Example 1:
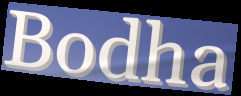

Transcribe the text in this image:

Bodha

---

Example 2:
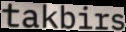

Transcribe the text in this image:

takbirs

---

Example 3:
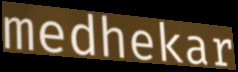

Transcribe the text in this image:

medhekar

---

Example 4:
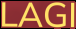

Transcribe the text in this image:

LAGI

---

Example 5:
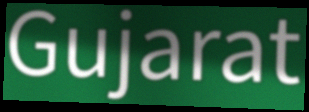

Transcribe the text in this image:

Gujarat